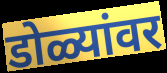
डोळ्यांवर